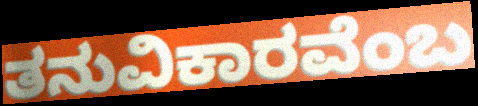
ತನುವಿಕಾರವೆಂಬ